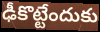
ఢీకొట్టేందుకు